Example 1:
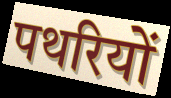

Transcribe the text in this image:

पथरियों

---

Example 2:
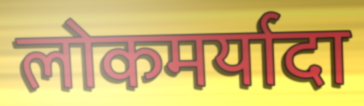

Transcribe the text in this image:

लोकमर्यादा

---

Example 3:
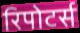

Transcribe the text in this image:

रिपोटर्स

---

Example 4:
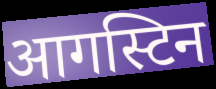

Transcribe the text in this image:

आगस्टिन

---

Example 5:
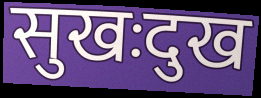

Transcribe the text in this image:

सुखःदुख